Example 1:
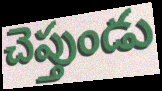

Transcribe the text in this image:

చెప్తుండు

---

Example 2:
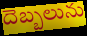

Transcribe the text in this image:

దెబ్బలును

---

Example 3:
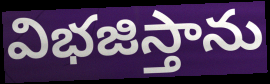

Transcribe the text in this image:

విభజిస్తాను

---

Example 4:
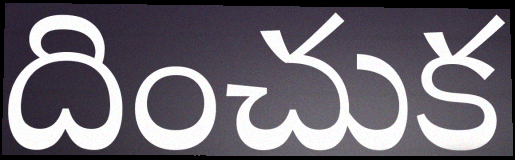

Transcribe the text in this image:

దించుక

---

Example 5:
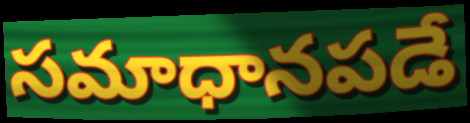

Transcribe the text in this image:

సమాధానపడే